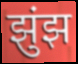
झुंझ